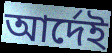
আর্দেই